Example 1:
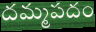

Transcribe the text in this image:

దమ్మపదం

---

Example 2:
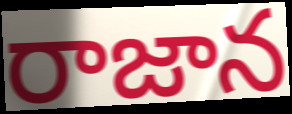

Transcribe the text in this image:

రాజాన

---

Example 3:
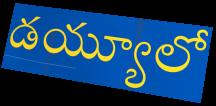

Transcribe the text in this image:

డయ్యూలో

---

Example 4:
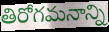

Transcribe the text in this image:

తిరోగమనాన్ని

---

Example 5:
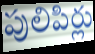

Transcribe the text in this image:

పులిపిర్లు